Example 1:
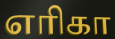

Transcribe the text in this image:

எரிகா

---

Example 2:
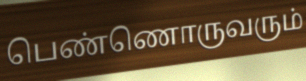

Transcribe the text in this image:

பெண்ணொருவரும்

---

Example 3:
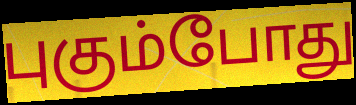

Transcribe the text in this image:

புகும்போது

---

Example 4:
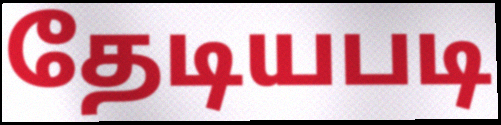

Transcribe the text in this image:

தேடியபடி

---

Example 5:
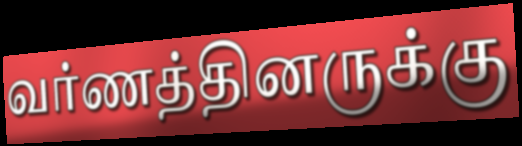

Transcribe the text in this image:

வர்ணத்தினருக்கு